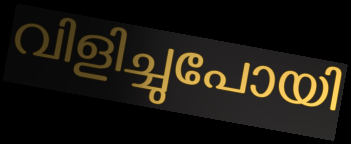
വിളിച്ചുപോയി